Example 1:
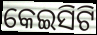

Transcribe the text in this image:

କେଇସିଟି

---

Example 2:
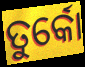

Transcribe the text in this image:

ତୁର୍କୋ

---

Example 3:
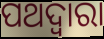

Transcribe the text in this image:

ପଥଦ୍ଵାରା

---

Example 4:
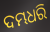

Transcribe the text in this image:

ଦମ୍ଭଧରି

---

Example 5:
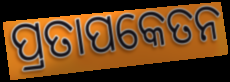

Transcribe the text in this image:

ପ୍ରତାପକେତନ